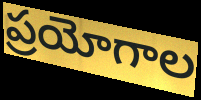
ప్రయోగాల